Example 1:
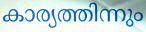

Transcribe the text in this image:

കാര്യത്തിന്നും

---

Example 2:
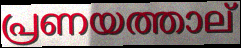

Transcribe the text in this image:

പ്രണയത്താല്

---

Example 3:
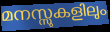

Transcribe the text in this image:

മനസ്സുകളിലും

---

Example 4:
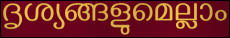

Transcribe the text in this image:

ദൃശ്യങ്ങളുമെല്ലാം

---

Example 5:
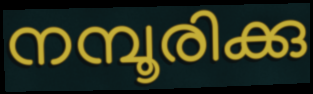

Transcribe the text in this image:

നമ്പൂരിക്കു